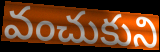
వంచుకుని